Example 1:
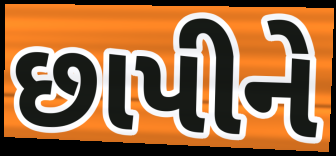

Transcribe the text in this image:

છાપીને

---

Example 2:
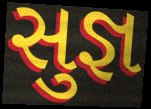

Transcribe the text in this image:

સુજ્ઞ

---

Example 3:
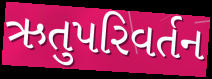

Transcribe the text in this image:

ઋતુપરિવર્તન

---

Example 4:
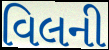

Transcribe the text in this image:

વિલની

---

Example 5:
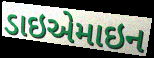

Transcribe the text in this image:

ડાઇએમાઇન